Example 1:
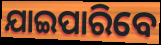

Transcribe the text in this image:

ଯାଇପାରିବେ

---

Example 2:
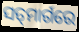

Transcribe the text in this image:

ସତ୍‌ମାର୍ଗରେ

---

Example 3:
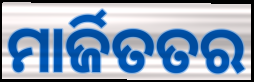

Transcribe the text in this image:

ମାର୍ଜିତତର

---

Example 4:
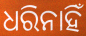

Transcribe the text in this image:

ଧରିନାହିଁ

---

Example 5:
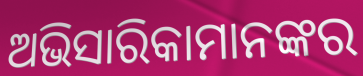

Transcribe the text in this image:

ଅଭିସାରିକାମାନଙ୍କର